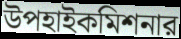
উপহাইকমিশনার